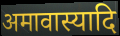
अमावास्यादि